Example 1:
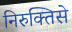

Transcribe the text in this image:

निरुक्तिसे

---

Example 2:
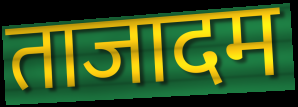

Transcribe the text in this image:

ताजादम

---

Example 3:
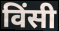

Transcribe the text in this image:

विंसी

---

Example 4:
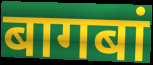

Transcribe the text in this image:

बागबां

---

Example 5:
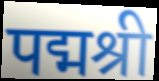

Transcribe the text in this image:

पद्मश्री